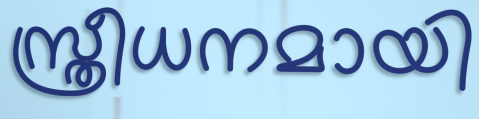
സ്ത്രീധനമായി